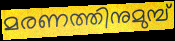
മരണത്തിനുമുമ്പ്